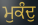
ਮੁਕੰਦੁ